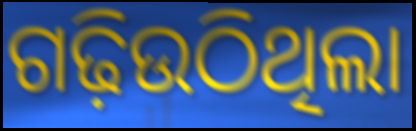
ଗଢ଼ିଉଠିଥିଲା